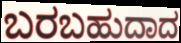
ಬರಬಹುದಾದ